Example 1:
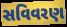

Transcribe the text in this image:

સવિવરણ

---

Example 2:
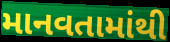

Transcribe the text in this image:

માનવતામાંથી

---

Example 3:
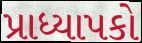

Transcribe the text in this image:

પ્રાધ્યાપકો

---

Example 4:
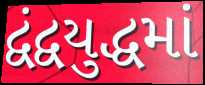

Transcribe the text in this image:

દ્વંદ્વયુદ્ધમાં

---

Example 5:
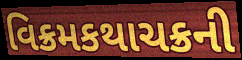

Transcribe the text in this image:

વિક્રમકથાચક્રની